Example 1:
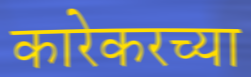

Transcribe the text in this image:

कारेकरच्या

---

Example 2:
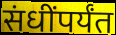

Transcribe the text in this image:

संधींपर्यंत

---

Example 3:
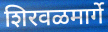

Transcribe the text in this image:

शिरवळमार्गे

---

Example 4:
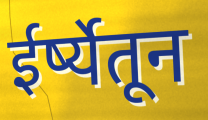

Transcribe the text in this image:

ईर्ष्येतून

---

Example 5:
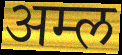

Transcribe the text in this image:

अम्ल